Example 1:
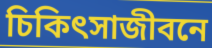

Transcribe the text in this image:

চিকিৎসাজীবনে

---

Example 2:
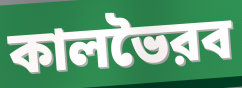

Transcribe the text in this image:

কালভৈরব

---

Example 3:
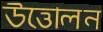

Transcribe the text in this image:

উত্তোলন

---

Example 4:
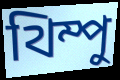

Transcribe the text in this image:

থিম্পু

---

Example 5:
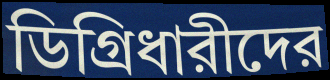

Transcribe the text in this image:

ডিগ্রিধারীদের